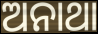
ଅନାଥା